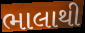
ભાલાથી